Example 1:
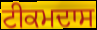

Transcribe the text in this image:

ਟੀਕਮਦਾਸ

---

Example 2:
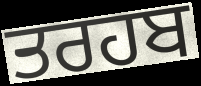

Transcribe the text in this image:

ਤਰਹਬ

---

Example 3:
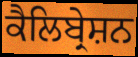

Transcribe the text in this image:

ਕੈਲਿਬ੍ਰੇਸ਼ਨ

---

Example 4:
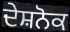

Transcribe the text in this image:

ਦੇਸ਼ਨੋਕ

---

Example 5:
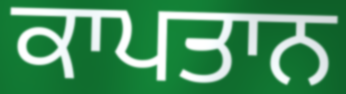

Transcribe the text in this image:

ਕਾਪਤਾਨ